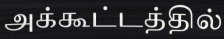
அக்கூட்டத்தில்